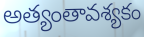
అత్యంతావశ్యకం